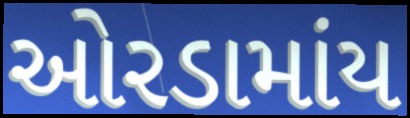
ઓરડામાંય